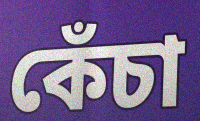
কেঁচা